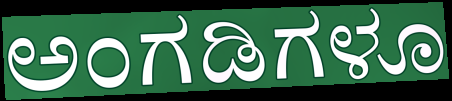
ಅಂಗಡಿಗಳೂ